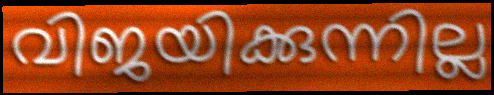
വിജയിക്കുന്നില്ല